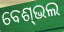
ବେଶ୍‌ଭଲ